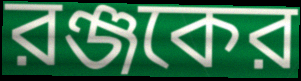
রঞ্জকের